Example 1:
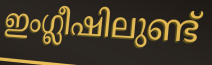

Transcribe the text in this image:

ഇംഗ്ലീഷിലുണ്ട്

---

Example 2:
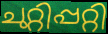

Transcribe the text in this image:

ചുറ്റിപ്പറ്റി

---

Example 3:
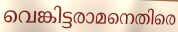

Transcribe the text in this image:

വെങ്കിട്ടരാമനെതിരെ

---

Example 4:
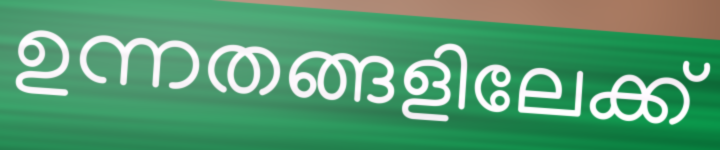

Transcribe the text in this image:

ഉന്നതങ്ങളിലേക്ക്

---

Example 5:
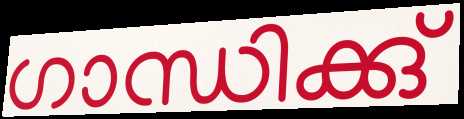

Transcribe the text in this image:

ഗാന്ധിക്കു്